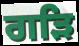
ਗੜਿ